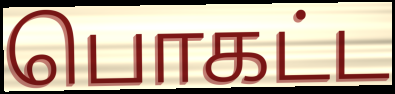
பொகட்ட